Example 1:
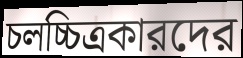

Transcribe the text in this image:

চলচ্চিত্রকারদের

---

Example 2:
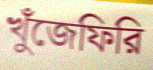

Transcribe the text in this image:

খুঁজেফিরি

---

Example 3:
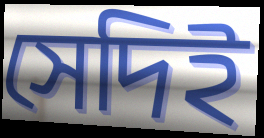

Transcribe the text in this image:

সেদিই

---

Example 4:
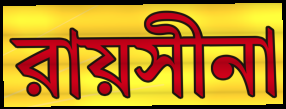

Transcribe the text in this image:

রায়সীনা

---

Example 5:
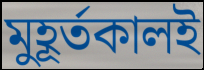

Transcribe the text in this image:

মুহূর্তকালই